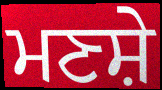
ਮਣਸ਼ੇ